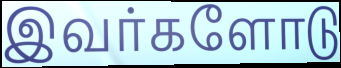
இவர்களோடு